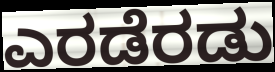
ಎರಡೆರಡು